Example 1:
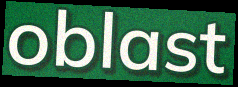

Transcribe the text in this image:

oblast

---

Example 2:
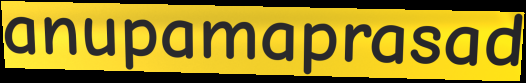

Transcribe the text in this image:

anupamaprasad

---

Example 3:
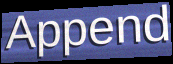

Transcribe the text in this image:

Append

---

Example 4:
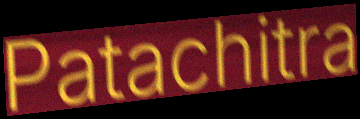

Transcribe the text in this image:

Patachitra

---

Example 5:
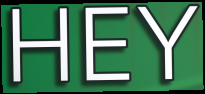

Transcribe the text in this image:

HEY